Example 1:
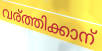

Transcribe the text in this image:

വര്ത്തിക്കാന്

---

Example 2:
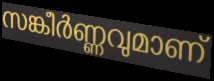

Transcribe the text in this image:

സങ്കീർണ്ണവുമാണ്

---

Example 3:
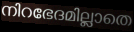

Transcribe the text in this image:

നിറഭേദമില്ലാതെ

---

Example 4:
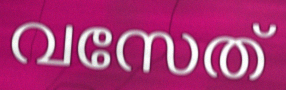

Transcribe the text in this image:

വസേത്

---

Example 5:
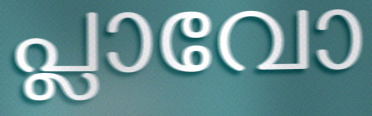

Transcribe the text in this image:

പ്ലാവോ